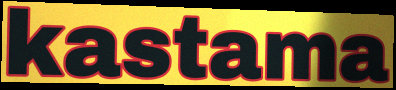
kastama